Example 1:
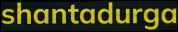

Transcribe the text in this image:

shantadurga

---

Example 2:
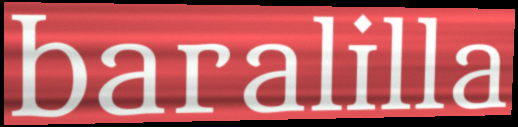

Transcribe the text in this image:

baralilla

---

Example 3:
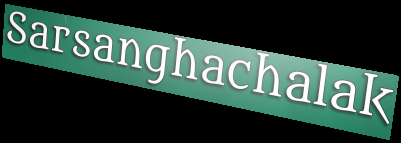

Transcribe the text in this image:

Sarsanghachalak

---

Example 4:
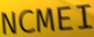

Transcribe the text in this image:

NCMEI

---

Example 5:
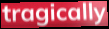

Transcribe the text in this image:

tragically